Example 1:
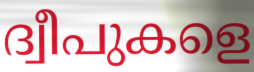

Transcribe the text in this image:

ദ്വീപുകളെ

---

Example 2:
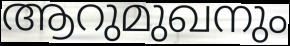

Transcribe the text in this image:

ആറുമുഖനും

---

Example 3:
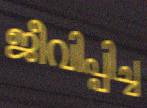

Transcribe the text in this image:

ജീവിപ്പിച്ച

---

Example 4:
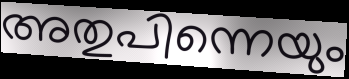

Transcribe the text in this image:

അതുപിന്നെയും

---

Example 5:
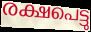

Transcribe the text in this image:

രക്ഷപെട്ടു